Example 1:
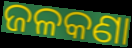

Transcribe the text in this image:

ଜଳକଣା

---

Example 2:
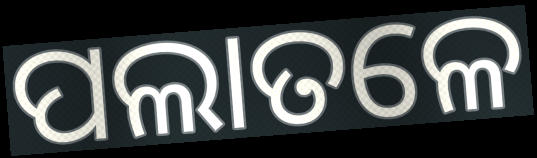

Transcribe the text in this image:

ପଲାତଳେ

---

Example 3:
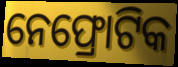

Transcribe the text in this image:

ନେଫ୍ରୋଟିକ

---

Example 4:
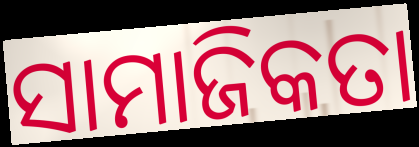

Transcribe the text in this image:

ସାମାଜିକତା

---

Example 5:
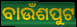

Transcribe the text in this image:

ବାଉଁଶପୁଟ